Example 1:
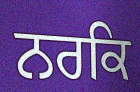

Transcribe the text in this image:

ਨਰਕਿ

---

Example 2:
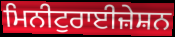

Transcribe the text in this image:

ਮਿਨੀਟੁਰਾਈਜ਼ੇਸ਼ਨ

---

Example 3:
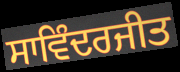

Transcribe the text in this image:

ਸਾਵਿੰਦਰਜੀਤ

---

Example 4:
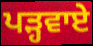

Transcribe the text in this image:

ਪੜ੍ਹਵਾਏ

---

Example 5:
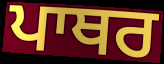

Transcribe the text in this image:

ਪਾਥਰ